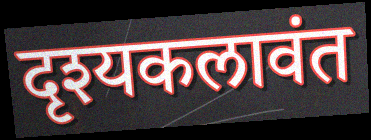
दृश्यकलावंत